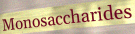
Monosaccharides